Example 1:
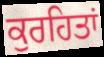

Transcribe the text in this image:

ਕੁਰਹਿਤਾਂ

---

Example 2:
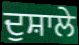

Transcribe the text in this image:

ਦੁਸ਼ਾਲੇ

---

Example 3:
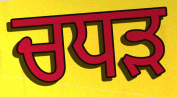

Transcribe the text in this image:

ਚਧੜ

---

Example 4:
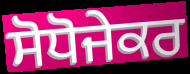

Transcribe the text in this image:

ਸੋਧੋਜੇਕਰ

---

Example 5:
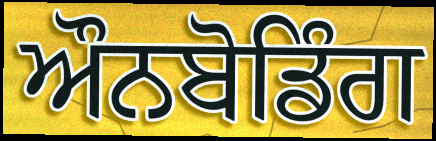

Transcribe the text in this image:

ਔਨਬੋਡਿੰਗ